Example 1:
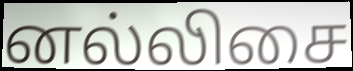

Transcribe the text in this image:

னல்லிசை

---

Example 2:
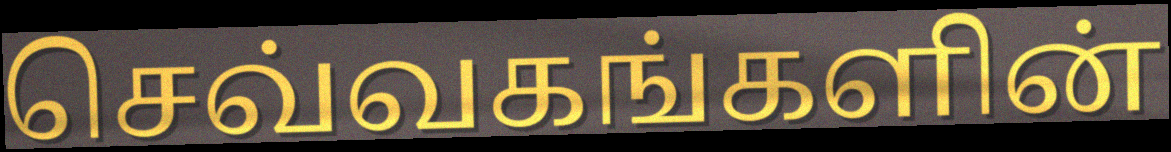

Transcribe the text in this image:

செவ்வகங்களின்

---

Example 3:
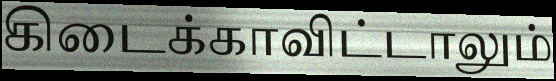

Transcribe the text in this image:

கிடைக்காவிட்டாலும்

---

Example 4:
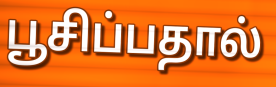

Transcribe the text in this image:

பூசிப்பதால்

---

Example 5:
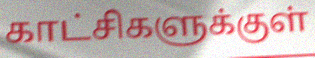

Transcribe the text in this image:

காட்சிகளுக்குள்